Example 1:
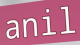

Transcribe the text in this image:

anil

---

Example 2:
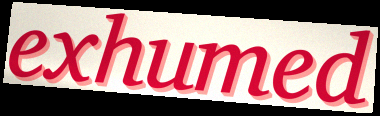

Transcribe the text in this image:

exhumed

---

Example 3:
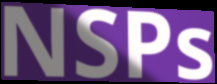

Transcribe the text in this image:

NSPs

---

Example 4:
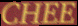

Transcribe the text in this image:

CHEE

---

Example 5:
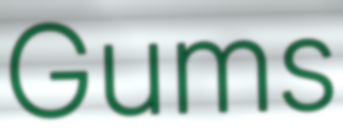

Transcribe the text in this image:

Gums